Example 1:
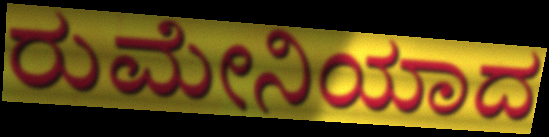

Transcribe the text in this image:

ರುಮೇನಿಯಾದ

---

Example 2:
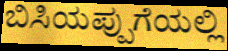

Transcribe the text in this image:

ಬಿಸಿಯಪ್ಪುಗೆಯಲ್ಲಿ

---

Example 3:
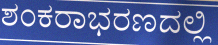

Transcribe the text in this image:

ಶಂಕರಾಭರಣದಲ್ಲಿ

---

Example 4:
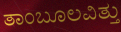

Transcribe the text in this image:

ತಾಂಬೂಲವಿತ್ತು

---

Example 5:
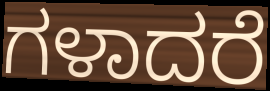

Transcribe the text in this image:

ಗಳಾದರೆ